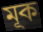
মূক